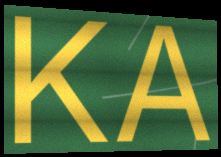
KA